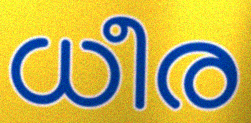
ധീര